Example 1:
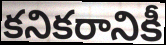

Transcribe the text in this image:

కనికరానికీ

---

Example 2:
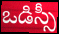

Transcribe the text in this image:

ఒడిస్సీ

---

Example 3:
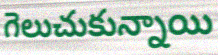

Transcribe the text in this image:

గెలుచుకున్నాయి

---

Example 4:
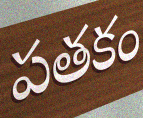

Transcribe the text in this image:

పతకం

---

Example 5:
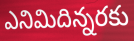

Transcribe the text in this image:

ఎనిమిదిన్నరకు